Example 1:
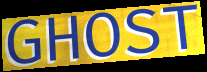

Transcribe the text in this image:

GHOST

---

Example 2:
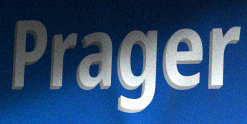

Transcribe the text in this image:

Prager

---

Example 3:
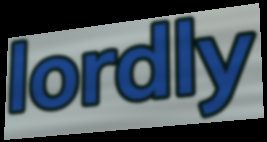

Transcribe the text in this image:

lordly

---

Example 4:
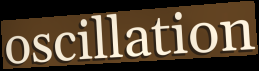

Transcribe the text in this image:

oscillation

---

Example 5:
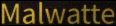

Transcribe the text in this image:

Malwatte